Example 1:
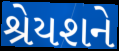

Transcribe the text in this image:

શ્રેયશને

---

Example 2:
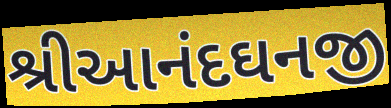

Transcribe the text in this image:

શ્રીઆનંદઘનજી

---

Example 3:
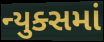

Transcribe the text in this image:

ન્યુક્સમાં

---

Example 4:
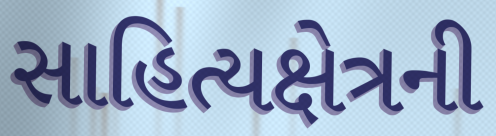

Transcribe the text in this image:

સાહિત્યક્ષેત્રની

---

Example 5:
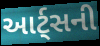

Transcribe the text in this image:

આર્ટ્સની